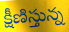
క్షీణిస్తున్న